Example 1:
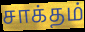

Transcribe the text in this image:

சாக்தம்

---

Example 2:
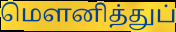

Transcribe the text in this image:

மெளனித்துப்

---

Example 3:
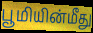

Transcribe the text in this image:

பூமியின்மீது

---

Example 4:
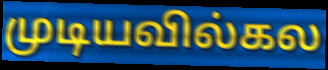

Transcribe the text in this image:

முடியவில்கல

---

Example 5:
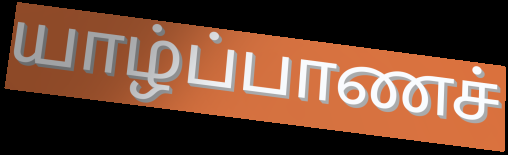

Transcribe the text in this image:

யாழ்ப்பாணச்